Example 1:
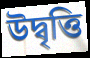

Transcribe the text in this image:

উদ্বৃত্তি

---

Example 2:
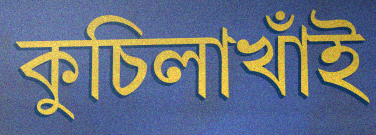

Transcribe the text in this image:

কুচিলাখাঁই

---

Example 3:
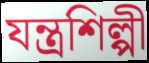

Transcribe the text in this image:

যন্ত্রশিল্পী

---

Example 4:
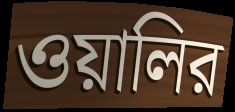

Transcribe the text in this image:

ওয়ালির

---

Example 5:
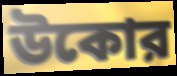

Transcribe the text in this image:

উকোর